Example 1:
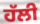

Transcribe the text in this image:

ਹੱਲੀ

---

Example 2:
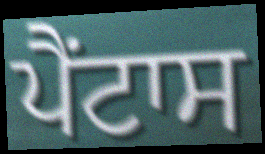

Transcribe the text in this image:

ਪੈਂਟਾਸ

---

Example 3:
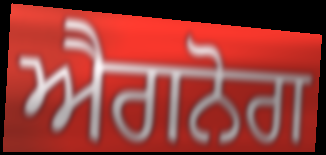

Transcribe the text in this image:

ਐਗਨੋਗ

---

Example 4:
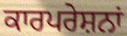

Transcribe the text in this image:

ਕਾਰਪਰੇਸ਼ਨਾਂ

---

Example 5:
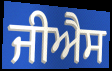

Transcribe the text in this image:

ਜੀਐਸ